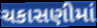
ચકાસણીમાં